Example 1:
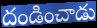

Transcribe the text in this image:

దండించాడు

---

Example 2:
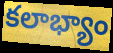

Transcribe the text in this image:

కలాభ్యాం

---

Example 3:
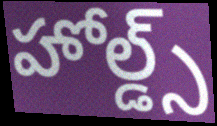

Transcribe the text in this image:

హోల్డ్స్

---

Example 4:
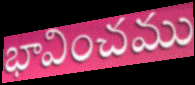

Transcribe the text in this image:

భావించము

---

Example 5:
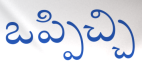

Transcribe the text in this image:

ఒప్పిచ్చి